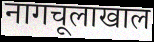
नागचूलाखाल